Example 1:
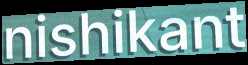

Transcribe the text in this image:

nishikant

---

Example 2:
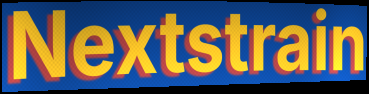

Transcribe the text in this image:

Nextstrain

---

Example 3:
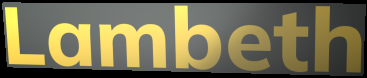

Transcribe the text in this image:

Lambeth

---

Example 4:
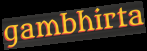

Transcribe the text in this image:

gambhirta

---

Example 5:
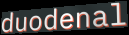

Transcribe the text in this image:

duodenal